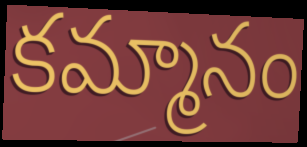
కమ్మానం